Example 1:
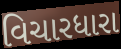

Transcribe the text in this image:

વિચારધારા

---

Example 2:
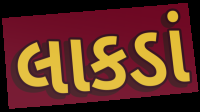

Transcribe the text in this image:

લાકડાં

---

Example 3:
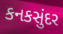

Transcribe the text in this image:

કનકસુંદર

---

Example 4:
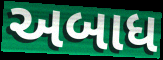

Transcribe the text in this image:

અબાધ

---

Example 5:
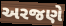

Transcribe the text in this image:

અરજણે